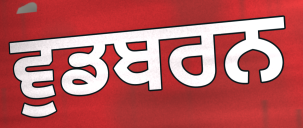
ਵੁਡਬਰਨ